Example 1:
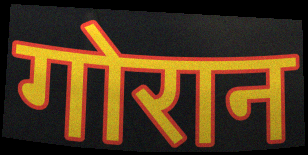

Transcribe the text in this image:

गोरान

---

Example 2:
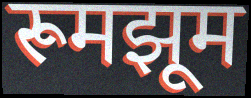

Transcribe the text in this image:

रूमझूम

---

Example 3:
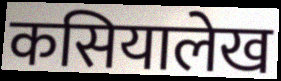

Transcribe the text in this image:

कसियालेख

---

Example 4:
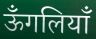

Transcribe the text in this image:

ऊँगलियाँ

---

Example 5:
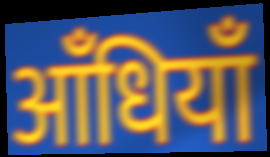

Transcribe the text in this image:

आँधियाँ